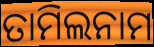
ତାମିଲନାମ